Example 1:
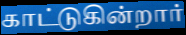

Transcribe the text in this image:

காட்டுகின்றார்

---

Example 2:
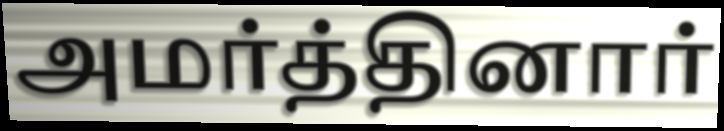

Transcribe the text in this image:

அமர்த்தினார்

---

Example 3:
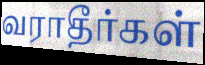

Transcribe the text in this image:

வராதீர்கள்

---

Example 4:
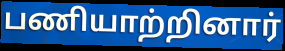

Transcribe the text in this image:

பணியாற்றினார்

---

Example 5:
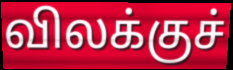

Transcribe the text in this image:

விலக்குச்